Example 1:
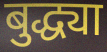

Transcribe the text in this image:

बुद्ध्या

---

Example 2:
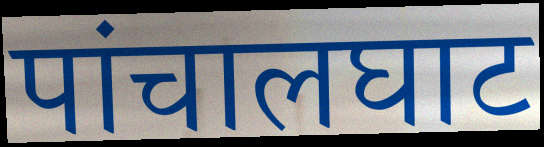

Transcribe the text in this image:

पांचालघाट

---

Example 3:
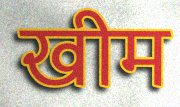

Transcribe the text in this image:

खीम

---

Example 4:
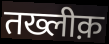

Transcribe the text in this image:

तख्लीक़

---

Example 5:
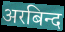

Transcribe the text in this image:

अरबिन्द